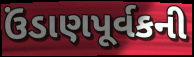
ઉંડાણપૂર્વકની